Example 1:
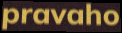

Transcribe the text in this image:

pravaho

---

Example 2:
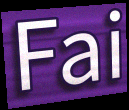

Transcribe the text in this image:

Fai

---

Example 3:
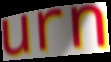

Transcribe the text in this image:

urn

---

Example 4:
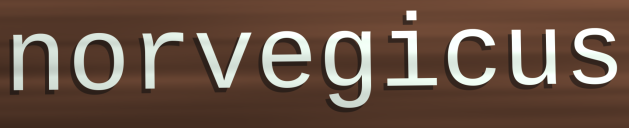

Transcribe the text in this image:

norvegicus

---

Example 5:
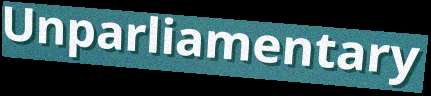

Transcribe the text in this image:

Unparliamentary